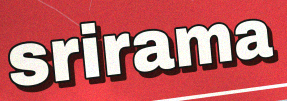
srirama